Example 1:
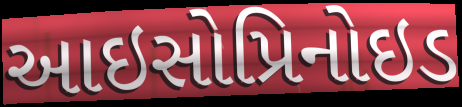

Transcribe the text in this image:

આઇસોપ્રિનોઇડ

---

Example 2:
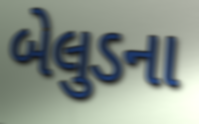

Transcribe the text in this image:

બેલુડના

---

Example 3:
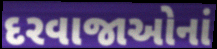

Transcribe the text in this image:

દરવાજાઓનાં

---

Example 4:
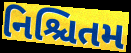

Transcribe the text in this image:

નિશ્ચિતમ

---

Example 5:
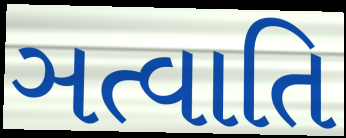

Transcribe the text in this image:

ઞત્વાતિ